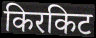
किरकिट